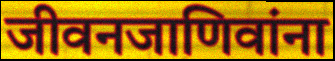
जीवनजाणिवांना